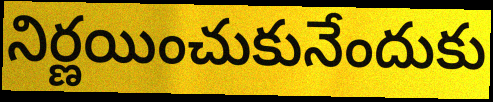
నిర్ణయించుకునేందుకు